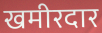
खमीरदार